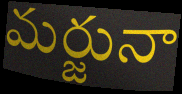
మర్జునా